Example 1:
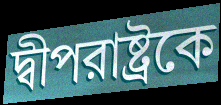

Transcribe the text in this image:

দ্বীপরাষ্ট্রকে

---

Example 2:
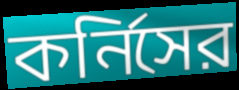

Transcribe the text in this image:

কর্নিসের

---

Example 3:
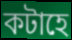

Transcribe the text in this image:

কটাহে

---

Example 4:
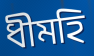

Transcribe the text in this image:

ধীমহি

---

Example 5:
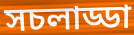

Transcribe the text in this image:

সচলাড্ডা